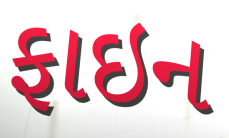
ફાઇન